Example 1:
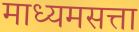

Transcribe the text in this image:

माध्यमसत्ता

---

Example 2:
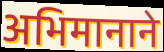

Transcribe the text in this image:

अभिमानाने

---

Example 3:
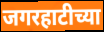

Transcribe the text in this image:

जगरहाटीच्या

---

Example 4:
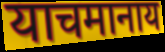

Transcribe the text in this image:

याचमानाय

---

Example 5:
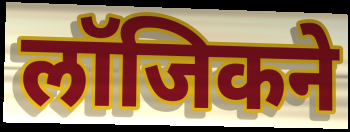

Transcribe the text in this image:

लॉजिकने